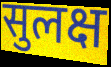
सुलक्ष